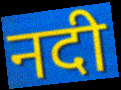
नदी